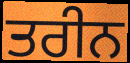
ਤਰੀਨ